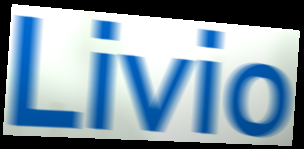
Livio